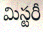
మిస్టరీ